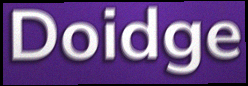
Doidge